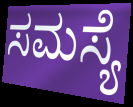
ಸಮಸ್ಯೆ